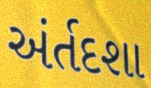
અંર્તદશા